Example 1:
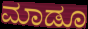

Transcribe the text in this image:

ಮಾಡೂ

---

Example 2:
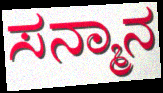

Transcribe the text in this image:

ಸನ್ಮಾನ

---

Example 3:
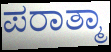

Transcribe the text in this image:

ಪರಾತ್ಮಾ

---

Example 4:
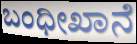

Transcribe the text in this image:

ಬಂಧೀಖಾನೆ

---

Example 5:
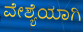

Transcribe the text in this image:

ವೇಶ್ಯೆಯಾಗಿ